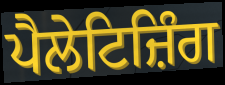
ਪੈਲੇਟਿਜ਼ਿੰਗ